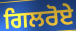
ਗਿਲਰੋਏ